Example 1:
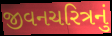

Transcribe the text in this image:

જીવનચરિત્રનું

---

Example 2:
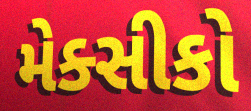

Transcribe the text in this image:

મેક્સીકો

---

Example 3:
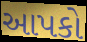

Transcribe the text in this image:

આપકો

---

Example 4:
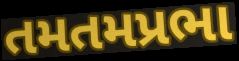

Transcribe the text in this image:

તમતમપ્રભા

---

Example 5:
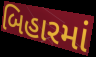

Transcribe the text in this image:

બિહારમાં